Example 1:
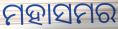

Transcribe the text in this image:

ମହାସମର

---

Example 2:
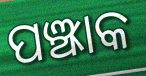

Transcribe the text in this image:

ପଞ୍ଝାକ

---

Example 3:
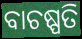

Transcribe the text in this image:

ବାଚଷ୍ପତି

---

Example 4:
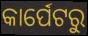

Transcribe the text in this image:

କାର୍ପେଟରୁ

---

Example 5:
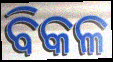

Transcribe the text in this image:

ବିକଳ